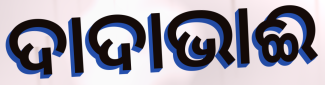
ଦାଦାଭାଈ